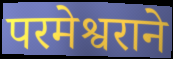
परमेश्वराने